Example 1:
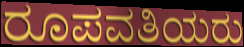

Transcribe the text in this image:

ರೂಪವತಿಯರು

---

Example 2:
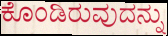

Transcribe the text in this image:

ಕೊಂಡಿರುವುದನ್ನು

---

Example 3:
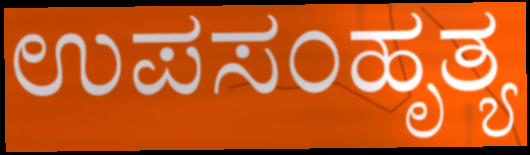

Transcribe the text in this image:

ಉಪಸಂಹೃತ್ಯ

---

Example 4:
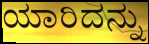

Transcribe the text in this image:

ಯಾರಿದನ್ನು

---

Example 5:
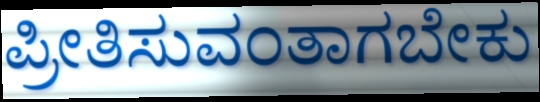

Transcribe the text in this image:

ಪ್ರೀತಿಸುವಂತಾಗಬೇಕು